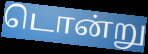
டொன்று